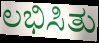
ಲಭಿಸಿತು